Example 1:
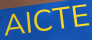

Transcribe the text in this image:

AICTE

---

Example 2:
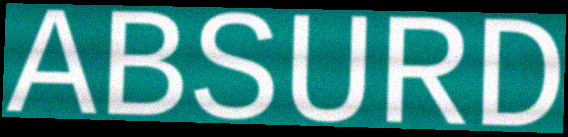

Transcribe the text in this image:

ABSURD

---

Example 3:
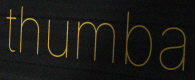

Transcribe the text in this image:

thumba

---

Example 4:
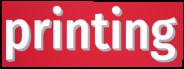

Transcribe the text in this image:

printing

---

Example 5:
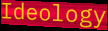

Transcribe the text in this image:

Ideology